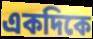
একদিকে